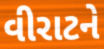
વીરાટને